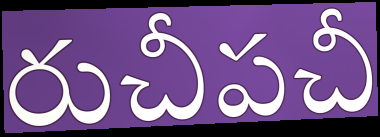
రుచీపచీ